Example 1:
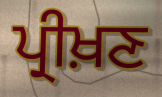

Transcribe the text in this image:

ਪ੍ਰੀਖ਼ਣ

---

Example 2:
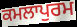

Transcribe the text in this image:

ਕਮਲਾਪੁਰਮ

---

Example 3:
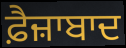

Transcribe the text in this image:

ਫ਼ੈਜ਼ਾਬਾਦ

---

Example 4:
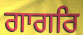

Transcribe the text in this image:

ਗਾਗਰਿ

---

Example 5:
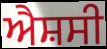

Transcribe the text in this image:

ਐਸ਼ਸੀ